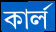
কাৰ্ল